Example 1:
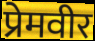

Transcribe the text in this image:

प्रेमवीर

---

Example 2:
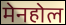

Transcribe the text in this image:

मेनहोल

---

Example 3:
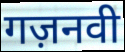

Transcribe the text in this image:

गज़नवी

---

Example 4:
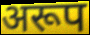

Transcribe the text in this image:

अरूप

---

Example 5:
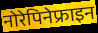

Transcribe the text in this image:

नोरेपिनेफ्राइन